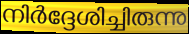
നിർദ്ദേശിച്ചിരുന്നു